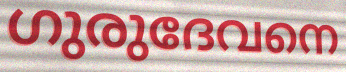
ഗുരുദേവനെ